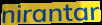
nirantar